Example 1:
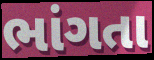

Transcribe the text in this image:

ભાંગતા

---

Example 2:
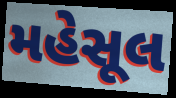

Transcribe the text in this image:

મહેસૂલ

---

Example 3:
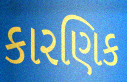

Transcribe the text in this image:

કારણિક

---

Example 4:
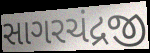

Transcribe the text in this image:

સાગરચંદ્રજી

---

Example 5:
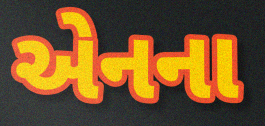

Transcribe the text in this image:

એનના